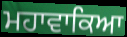
ਮਹਾਵਾਕਿਆ